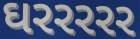
ઘરરરરર